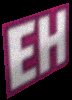
EH